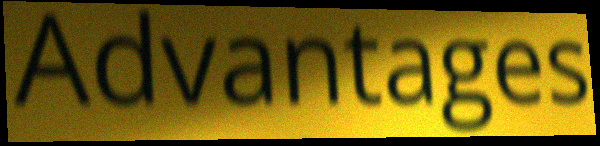
Advantages